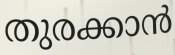
തുരക്കാൻ